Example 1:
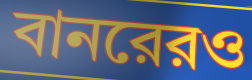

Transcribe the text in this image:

বানরেরও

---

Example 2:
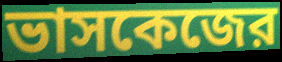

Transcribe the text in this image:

ভাসকেজের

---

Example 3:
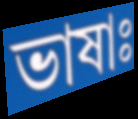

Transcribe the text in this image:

ভাষাঃ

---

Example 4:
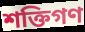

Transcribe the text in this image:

শক্তিগণ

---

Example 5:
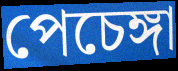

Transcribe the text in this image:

পেচেঙ্গা